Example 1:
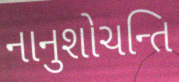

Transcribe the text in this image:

નાનુશોચન્તિ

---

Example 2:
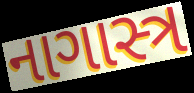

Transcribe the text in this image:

નાગાસ્ત્ર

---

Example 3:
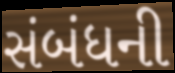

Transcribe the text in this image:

સંબંધની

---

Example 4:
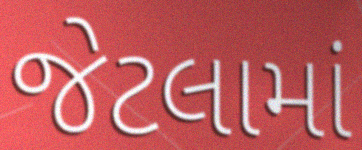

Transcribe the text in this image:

જેટલામાં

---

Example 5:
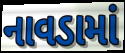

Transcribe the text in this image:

નાવડામાં